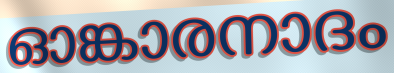
ഓങ്കാരനാദം